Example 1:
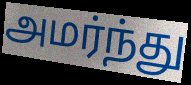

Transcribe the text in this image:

அமர்ந்து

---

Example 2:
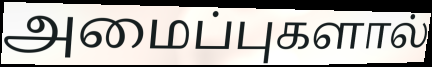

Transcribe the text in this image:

அமைப்புகளால்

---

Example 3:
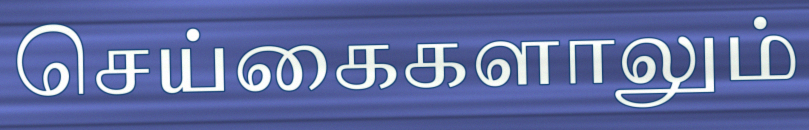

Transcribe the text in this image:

செய்கைகளாலும்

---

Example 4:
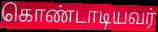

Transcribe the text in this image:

கொண்டாடியவர்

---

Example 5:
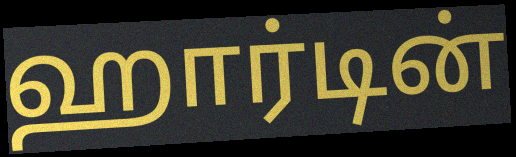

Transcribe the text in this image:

ஹார்டின்